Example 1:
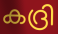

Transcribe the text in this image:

കദ്രി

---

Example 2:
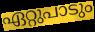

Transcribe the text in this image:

ഏറ്റുപാടും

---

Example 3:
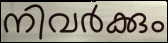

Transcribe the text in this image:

നിവർക്കും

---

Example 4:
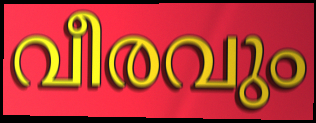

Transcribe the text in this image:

വീരവും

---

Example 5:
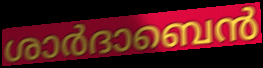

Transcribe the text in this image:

ശാർദാബെൻ